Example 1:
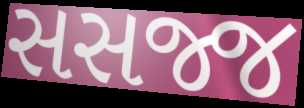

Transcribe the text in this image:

સસજ્જ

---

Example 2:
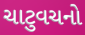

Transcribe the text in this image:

ચાટુવચનો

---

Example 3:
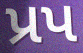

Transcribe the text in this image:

પ્રપ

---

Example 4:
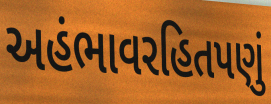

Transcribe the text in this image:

અહંભાવરહિતપણું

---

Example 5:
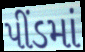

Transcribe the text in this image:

પીંડમાં